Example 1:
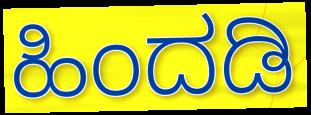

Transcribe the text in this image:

ಹಿಂದಡಿ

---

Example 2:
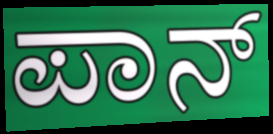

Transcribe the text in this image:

ಪಾನ್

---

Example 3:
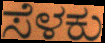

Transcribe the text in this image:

ಸೆಳಕು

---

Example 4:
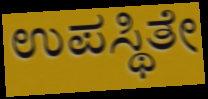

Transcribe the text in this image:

ಉಪಸ್ಥಿತೇ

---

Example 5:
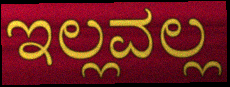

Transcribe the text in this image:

ಇಲ್ಲವಲ್ಲ